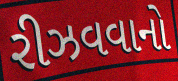
રીઝવવાનો